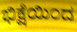
ಭಿಕ್ಷೆಯಿಂದ